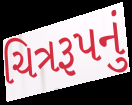
ચિત્રરૂપનું